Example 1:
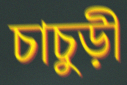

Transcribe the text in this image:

চাচুড়ী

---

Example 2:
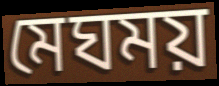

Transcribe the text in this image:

মেঘময়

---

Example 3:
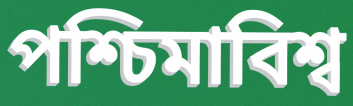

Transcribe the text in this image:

পশ্চিমাবিশ্ব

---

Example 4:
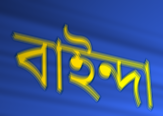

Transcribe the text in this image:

বাইন্দা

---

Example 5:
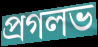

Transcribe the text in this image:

প্রগলভ